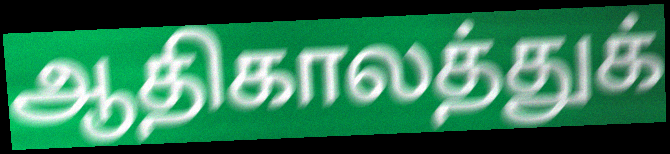
ஆதிகாலத்துக்